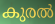
കുരൽ